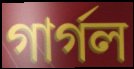
গার্গল